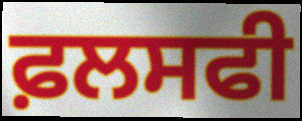
ਫ਼ਲਸਫੀ